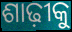
ଶାଢ଼ୀକୁ